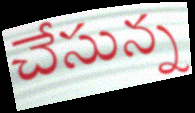
చేసున్న